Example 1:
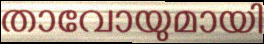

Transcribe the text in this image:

താവോയുമായി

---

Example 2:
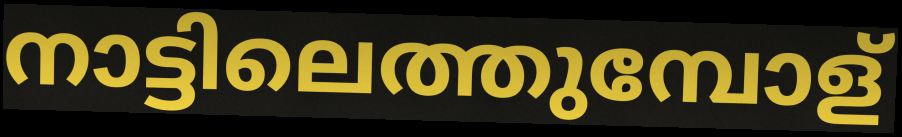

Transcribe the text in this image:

നാട്ടിലെത്തുമ്പോള്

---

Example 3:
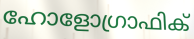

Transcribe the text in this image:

ഹോളോഗ്രാഫിക്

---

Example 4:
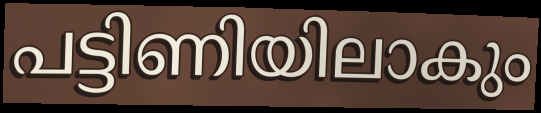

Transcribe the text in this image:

പട്ടിണിയിലാകും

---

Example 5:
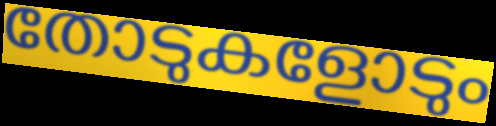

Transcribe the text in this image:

തോടുകളോടും